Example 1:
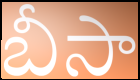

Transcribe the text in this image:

బీసా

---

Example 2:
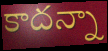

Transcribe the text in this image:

కాదన్నా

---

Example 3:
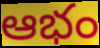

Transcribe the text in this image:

ఆభం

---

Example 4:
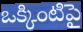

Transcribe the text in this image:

ఒక్కింటిపై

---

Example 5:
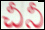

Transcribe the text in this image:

చీనీ